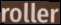
roller